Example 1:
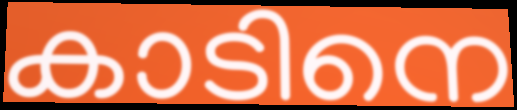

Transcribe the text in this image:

കാടിനെ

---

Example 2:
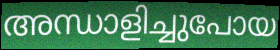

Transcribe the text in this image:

അന്ധാളിച്ചുപോയ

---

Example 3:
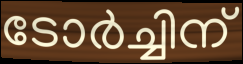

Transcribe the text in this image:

ടോർച്ചിന്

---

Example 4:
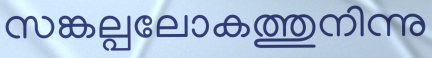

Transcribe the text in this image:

സങ്കല്പലോകത്തുനിന്നു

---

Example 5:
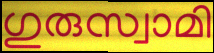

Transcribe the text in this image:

ഗുരുസ്വാമി